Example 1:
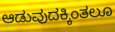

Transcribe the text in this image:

ಆಡುವುದಕ್ಕಿಂತಲೂ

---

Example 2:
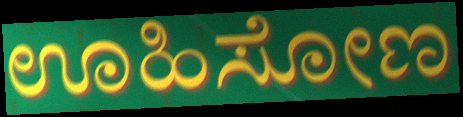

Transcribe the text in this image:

ಊಹಿಸೋಣ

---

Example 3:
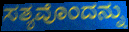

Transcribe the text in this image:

ಸತ್ಯವೊಂದನ್ನು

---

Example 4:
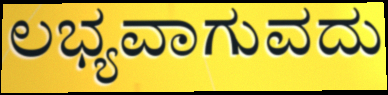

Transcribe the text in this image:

ಲಭ್ಯವಾಗುವದು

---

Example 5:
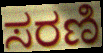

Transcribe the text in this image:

ಸರಣಿ